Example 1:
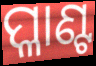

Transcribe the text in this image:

ପ୍ଳାଣ୍ଟ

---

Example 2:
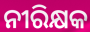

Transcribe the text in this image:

ନୀରିକ୍ଷକ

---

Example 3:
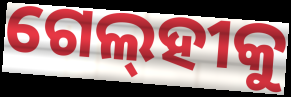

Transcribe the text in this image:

ଗେଲ୍‌ହୀକୁ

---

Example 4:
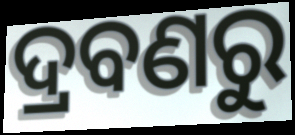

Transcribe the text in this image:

ଦ୍ରବଣରୁ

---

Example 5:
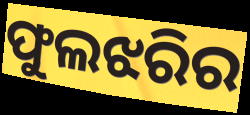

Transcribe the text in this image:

ଫୁଲଝରିର